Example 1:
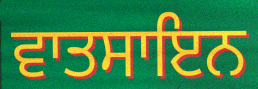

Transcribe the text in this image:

ਵਾਤਸਾਇਨ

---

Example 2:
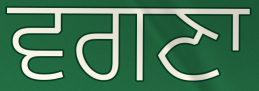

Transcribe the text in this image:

ਵਗਣਾ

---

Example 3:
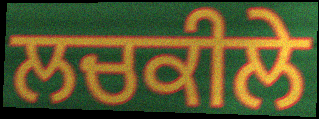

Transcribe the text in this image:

ਲਚਕੀਲੇ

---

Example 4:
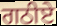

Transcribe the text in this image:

ਗਠੀਏ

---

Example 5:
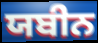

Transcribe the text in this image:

ਯਬੀਨ